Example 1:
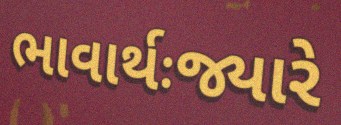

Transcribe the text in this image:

ભાવાર્થઃજ્યારે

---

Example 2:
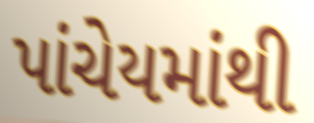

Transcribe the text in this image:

પાંચેયમાંથી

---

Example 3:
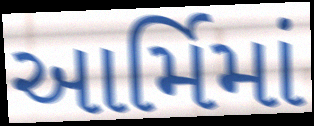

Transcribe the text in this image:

આર્મિમાં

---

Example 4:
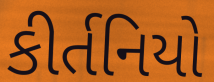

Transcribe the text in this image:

કીર્તનિયો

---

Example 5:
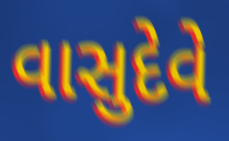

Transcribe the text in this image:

વાસુદેવે